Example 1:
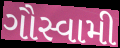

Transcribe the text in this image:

ગૌસ્વામી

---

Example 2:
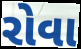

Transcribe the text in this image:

રોવા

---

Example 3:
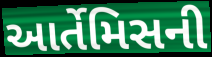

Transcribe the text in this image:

આર્તેમિસની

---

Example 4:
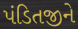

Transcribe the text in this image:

પંડિતજીને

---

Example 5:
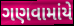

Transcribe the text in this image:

ગણવામાંયે